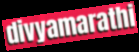
divyamarathi